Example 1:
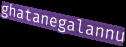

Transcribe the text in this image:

ghatanegalannu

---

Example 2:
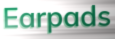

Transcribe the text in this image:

Earpads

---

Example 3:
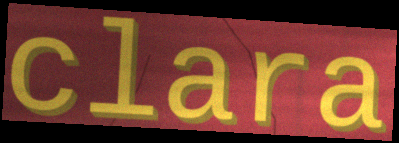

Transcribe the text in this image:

clara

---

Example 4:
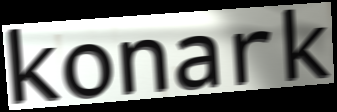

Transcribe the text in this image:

konark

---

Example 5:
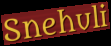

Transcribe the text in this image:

Snehuli